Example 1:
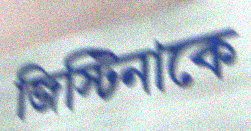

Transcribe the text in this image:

জিস্টিনাকে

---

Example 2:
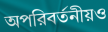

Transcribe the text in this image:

অপরিবর্তনীয়ও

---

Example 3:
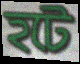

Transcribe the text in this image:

হটে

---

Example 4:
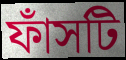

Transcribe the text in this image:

ফাঁসটি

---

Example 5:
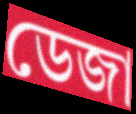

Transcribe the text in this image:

ডেজা